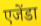
एजेंडा